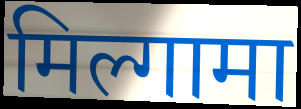
मिल्गामा